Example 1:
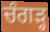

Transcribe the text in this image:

ਚੰਗੜ੍ਹ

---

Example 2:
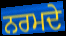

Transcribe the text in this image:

ਨਰਮਦੇ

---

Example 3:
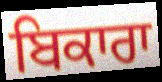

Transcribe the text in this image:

ਬਿਕਾਰਾ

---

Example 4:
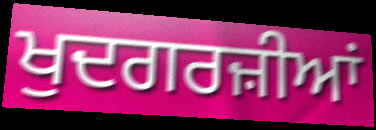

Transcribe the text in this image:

ਖੁਦਗਰਜ਼ੀਆਂ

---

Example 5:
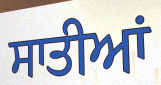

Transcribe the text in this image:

ਸਾਤੀਆਂ